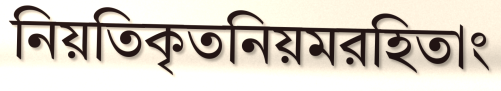
নিয়তিকৃতনিয়মরহিতাং